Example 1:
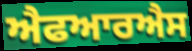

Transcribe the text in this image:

ਐਫਆਰਐਸ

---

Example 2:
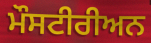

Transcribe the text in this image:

ਮੌਸਟੀਰੀਅਨ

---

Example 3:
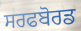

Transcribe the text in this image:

ਸਰਫਬੋਰਡ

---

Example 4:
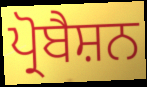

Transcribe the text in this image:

ਪ੍ਰੋਬੈਸ਼ਨ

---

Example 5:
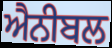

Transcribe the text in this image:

ਐਨੀਬਲ